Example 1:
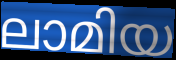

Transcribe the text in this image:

ലാമിയ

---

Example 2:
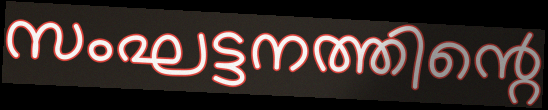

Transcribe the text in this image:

സംഘട്ടനത്തിന്റെ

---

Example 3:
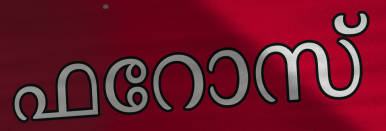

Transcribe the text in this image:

ഫറോസ്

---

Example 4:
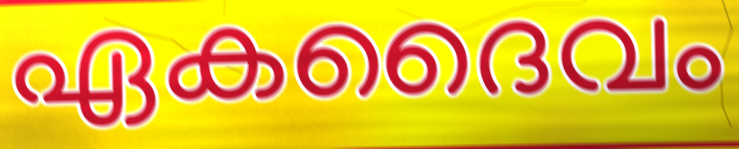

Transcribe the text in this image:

ഏകദൈവം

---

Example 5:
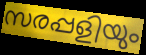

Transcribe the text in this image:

സരപ്പളിയും